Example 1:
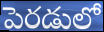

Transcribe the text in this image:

పెరడులో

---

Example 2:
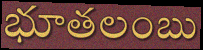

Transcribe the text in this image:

భూతలంబు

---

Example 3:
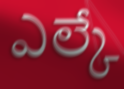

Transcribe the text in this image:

ఎల్కే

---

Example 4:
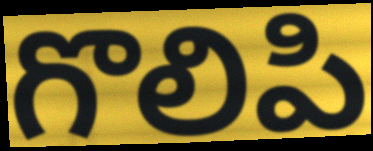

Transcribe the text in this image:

గొలిపి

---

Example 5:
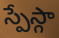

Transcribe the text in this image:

స్పేస్గా